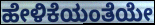
ಹೇಳಿಕೆಯಂತೆಯೇ